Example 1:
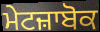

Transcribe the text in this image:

ਮੇਟਜ਼ਾਬੋਕ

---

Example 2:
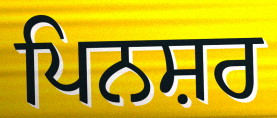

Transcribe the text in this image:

ਪਿਨਸ਼ਰ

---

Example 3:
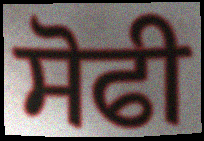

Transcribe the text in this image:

ਸੋਫੀ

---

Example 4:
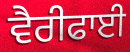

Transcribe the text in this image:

ਵੈਰੀਫਾਈ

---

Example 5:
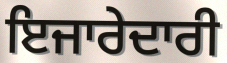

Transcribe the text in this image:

ਇਜਾਰੇਦਾਰੀ